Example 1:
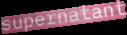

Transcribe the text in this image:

supernatant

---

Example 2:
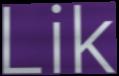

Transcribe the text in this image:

Lik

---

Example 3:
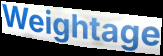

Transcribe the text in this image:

Weightage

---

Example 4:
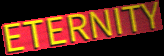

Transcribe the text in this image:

ETERNITY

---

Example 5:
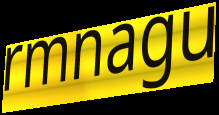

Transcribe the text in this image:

rmnagu